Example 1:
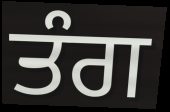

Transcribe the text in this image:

ਤੰਗ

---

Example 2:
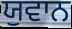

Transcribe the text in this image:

ਯੁਵਾਨ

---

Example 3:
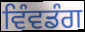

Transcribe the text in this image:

ਵਿੰਵਡੰਗ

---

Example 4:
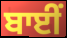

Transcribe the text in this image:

ਬਾਈਂ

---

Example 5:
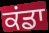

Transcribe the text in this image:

ਕਂਡਾ